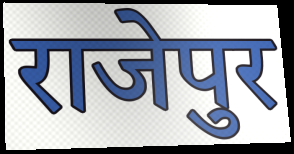
राजेपुर